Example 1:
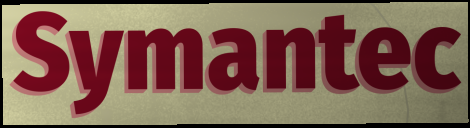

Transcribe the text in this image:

Symantec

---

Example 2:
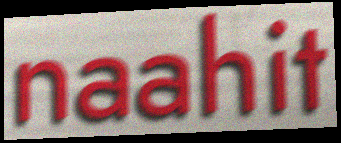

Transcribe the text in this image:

naahit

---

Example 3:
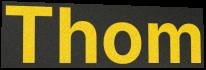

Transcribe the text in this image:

Thom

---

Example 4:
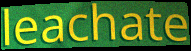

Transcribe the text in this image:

leachate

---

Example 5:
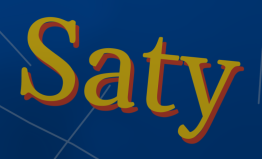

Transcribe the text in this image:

Saty